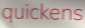
quickens